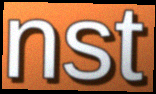
nst